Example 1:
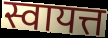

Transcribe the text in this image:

स्वायत्त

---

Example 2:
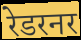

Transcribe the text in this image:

रेडरनर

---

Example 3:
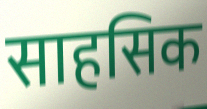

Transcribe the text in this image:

साहसिक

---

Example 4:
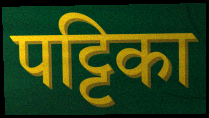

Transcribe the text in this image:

पट्टिका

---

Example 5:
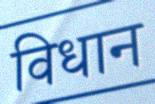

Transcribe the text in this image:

विधान